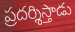
ప్రదర్శిస్తాడు